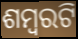
ଶମ୍ବରଟି